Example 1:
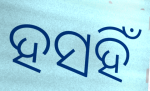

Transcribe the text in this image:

ହସହିଁ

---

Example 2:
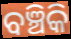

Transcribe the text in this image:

ବଞ୍ଚିକି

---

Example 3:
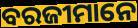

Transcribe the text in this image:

ବରଜୀମାନେ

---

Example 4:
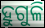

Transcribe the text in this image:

ହୁଗୁଳି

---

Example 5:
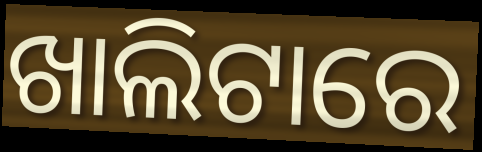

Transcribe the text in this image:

ଖାଲିଟାରେ